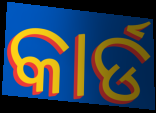
କାର୍ଡ